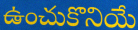
ఉంచుకొనియే